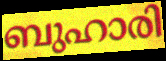
ബുഹാരി